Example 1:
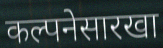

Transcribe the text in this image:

कल्पनेसारखा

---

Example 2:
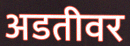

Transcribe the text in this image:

अडतीवर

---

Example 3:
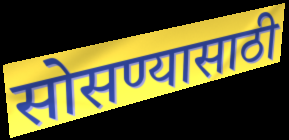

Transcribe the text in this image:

सोसण्यासाठी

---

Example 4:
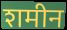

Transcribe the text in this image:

शमीन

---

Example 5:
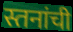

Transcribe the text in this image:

स्तनांची